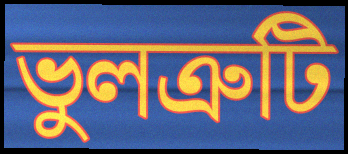
ভুলত্রুটি